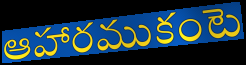
ఆహారముకంటె